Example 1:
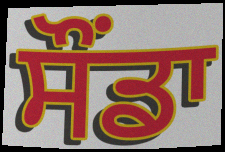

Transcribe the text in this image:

ਸੌਂਡਾ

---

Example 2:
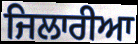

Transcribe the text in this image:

ਜਿਲਾਰੀਆ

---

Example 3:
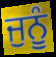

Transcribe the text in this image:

ਜੁਨੂੰ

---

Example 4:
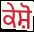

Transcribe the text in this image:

ਕੇਸ਼ੋ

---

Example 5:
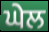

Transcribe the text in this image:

ਘੇਲ